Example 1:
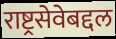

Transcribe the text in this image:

राष्ट्रसेवेबद्दल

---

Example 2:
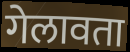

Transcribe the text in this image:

गेलावता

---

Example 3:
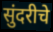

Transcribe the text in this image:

सुंदरीचे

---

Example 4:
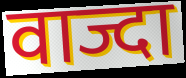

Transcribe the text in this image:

वाज्दा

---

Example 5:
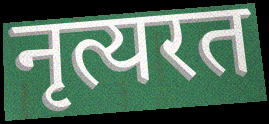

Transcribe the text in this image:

नृत्यरत